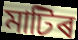
মাটিৰ